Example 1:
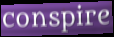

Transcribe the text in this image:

conspire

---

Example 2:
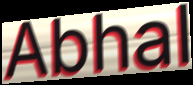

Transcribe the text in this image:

Abhal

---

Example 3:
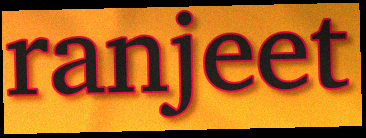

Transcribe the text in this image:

ranjeet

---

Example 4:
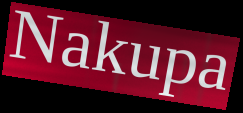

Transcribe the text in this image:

Nakupa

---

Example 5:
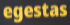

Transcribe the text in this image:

egestas